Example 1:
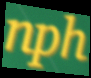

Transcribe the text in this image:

nph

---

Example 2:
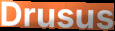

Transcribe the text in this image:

Drusus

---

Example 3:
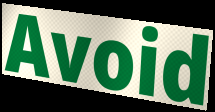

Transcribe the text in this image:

Avoid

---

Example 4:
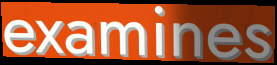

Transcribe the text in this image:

examines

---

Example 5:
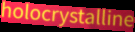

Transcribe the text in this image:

holocrystalline